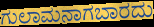
ಗುಲಾಮನಾಗಬಾರದು